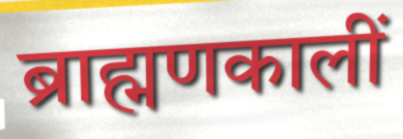
ब्राह्मणकालीं